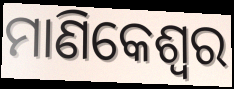
ମାଣିକେଶ୍ଵର